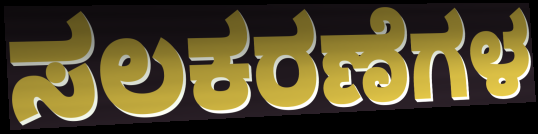
ಸಲಕರಣೆಗಳ